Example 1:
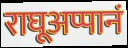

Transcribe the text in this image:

राघूअप्पानं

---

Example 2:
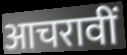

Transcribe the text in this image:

आचरावीं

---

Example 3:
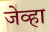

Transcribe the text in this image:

जेव्हा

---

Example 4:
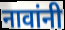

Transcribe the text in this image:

नावांनी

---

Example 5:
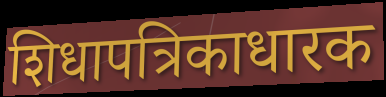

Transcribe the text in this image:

शिधापत्रिकाधारक